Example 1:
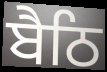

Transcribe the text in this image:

ਬੈਠਿ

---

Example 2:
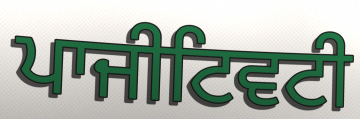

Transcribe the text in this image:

ਪਾਜੀਟਿਵਟੀ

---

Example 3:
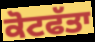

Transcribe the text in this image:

ਕੋਟਫੱਤਾ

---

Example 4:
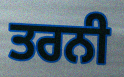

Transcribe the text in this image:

ਤਰਨੀ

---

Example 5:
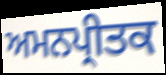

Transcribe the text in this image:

ਅਮਨਪ੍ਰੀਤਕ